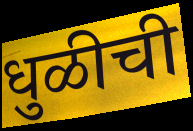
धुळीची